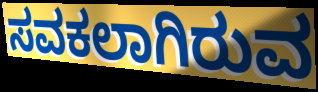
ಸವಕಲಾಗಿರುವ